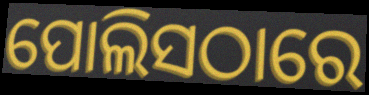
ପୋଲିସଠାରେ